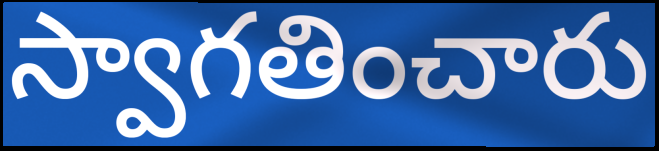
స్వాగతించారు